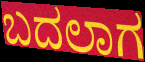
ಬದಲಾಗ